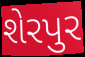
શેરપુર